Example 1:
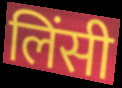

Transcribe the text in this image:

लिंसी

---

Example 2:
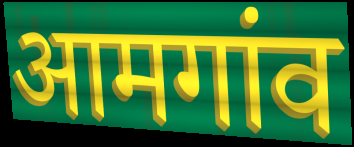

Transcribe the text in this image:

आमगांव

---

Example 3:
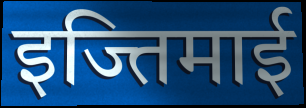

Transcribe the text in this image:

इज्तिमाई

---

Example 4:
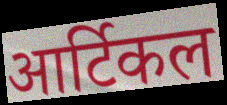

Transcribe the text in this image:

आर्टिकल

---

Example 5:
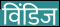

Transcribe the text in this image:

विंडिज